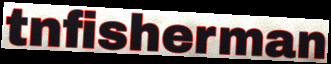
tnfisherman